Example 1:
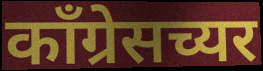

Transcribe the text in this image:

काँग्रेसच्यर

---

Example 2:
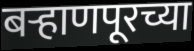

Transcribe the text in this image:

बऱ्हाणपूरच्या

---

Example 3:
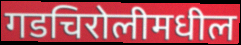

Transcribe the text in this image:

गडचिरोलीमधील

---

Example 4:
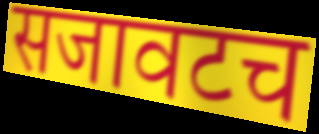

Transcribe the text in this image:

सजावटच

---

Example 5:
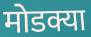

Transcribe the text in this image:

मोडक्या